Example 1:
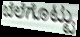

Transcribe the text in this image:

ಬೆಲೆಗೊಟ್ಟು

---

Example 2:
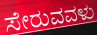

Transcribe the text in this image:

ಸೇರುವವಳು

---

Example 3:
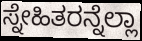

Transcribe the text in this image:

ಸ್ನೇಹಿತರನ್ನೆಲ್ಲಾ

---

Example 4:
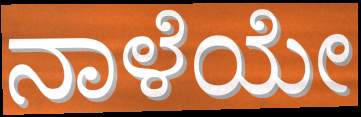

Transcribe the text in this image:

ನಾಳೆಯೇ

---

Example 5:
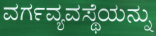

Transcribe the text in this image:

ವರ್ಗವ್ಯವಸ್ಥೆಯನ್ನು